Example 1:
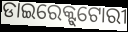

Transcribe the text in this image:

ଡାଇରେକ୍ଟ୍‌ଟୋରୀ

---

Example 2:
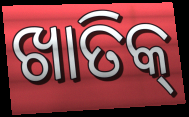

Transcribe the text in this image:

ଖାତିକ୍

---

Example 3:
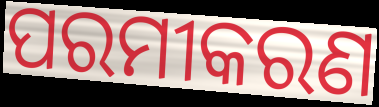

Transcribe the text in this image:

ପରମୀକରଣ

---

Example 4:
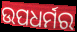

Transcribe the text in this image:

ଉପଧର୍ମର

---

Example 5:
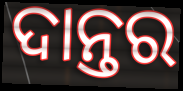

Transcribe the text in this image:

ଦାନ୍ତର